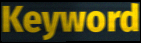
Keyword